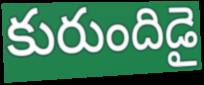
కురుందిడై